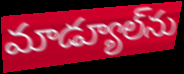
మాడ్యూల్‌ను